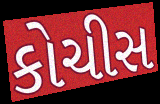
કોચીસ